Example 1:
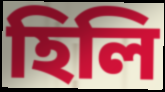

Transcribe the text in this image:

হিলি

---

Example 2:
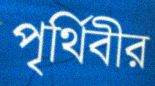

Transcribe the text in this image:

পৃর্থিবীর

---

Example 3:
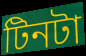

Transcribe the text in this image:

টিনটা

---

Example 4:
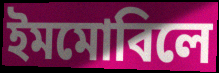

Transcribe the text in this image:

ইমমোবিলে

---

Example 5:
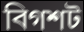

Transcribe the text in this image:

বিগশট